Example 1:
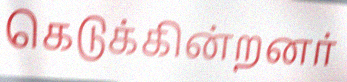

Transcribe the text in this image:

கெடுக்கின்றனர்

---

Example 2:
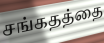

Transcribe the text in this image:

சங்கதத்தை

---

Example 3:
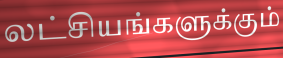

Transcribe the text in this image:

லட்சியங்களுக்கும்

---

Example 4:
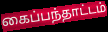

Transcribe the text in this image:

கைப்பந்தாட்டம்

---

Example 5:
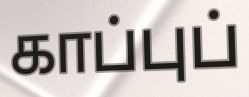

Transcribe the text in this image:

காப்புப்